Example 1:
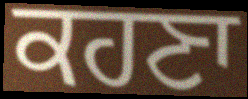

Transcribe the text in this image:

ਕਹਣਾ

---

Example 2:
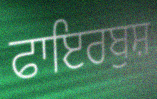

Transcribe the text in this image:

ਫਾਇਰਬੁਸ਼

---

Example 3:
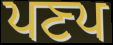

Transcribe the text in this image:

ਪਣਪ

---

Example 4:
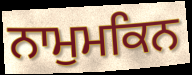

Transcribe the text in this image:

ਨਾਮੁਮਕਿਨ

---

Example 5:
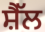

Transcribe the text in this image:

ਸ਼ੈੱਲ